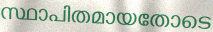
സ്ഥാപിതമായതോടെ